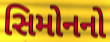
સિમોનનો